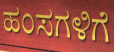
ಹಂಸಗಳಿಗೆ